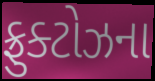
ફ્રુક્ટોઝના